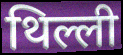
थिल्ली